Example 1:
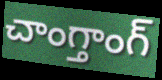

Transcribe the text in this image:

చాంగ్తాంగ్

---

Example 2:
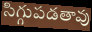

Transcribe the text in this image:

సిగ్గుపడతావు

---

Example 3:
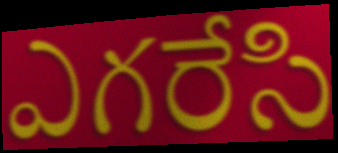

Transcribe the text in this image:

ఎగరేసి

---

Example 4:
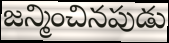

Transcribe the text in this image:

జన్మించినపుడు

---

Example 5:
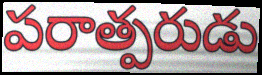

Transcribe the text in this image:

పరాత్పరుడు